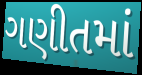
ગણીતમાં